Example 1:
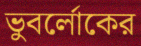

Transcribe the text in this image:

ভুবর্লোকের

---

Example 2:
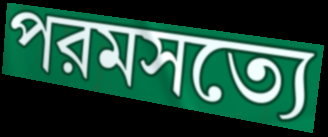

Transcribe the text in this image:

পরমসত্যে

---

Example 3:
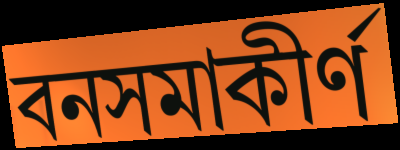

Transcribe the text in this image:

বনসমাকীর্ণ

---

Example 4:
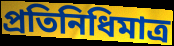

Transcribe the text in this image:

প্রতিনিধিমাত্র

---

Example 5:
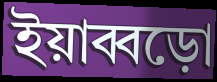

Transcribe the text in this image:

ইয়াব্বড়ো